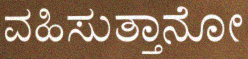
ವಹಿಸುತ್ತಾನೋ